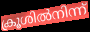
ക്രൂശിൽനിന്ന്